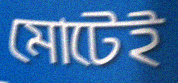
মোটেই